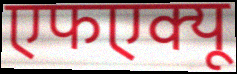
एफएक्यू